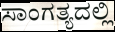
ಸಾಂಗತ್ಯದಲ್ಲಿ